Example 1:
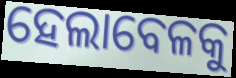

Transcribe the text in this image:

ହେଲାବେଳକୁ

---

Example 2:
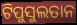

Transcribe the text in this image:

ଟିପୁସୁଲତାନ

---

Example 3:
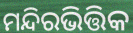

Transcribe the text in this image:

ମନ୍ଦିରଭିତ୍ତିକ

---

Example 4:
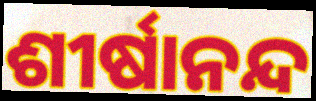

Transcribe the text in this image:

ଶୀର୍ଷାନନ୍ଦ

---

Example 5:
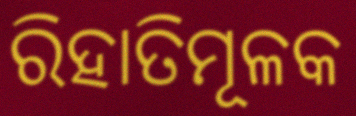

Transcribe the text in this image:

ରିହାତିମୂଳକ